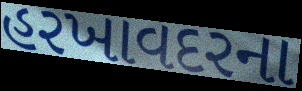
હરખાવદરના